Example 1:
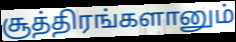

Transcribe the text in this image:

சூத்திரங்களானும்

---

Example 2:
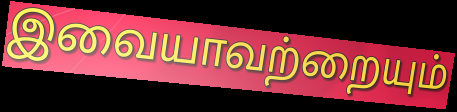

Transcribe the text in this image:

இவையாவற்றையும்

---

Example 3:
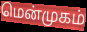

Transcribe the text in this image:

மென்முகம்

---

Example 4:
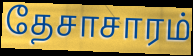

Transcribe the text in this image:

தேசாசாரம்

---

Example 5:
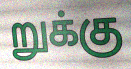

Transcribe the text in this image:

றுக்கு